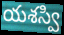
యశస్వి